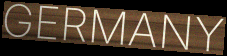
GERMANY